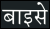
बाइसे